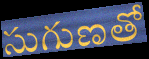
సుగుణతో